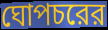
ঘোপচরের